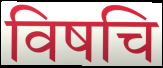
विषचि